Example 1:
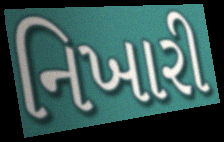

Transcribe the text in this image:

નિખારી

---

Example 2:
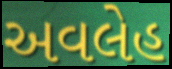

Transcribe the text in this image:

અવલેહ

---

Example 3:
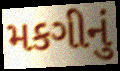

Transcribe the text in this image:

મકગીનું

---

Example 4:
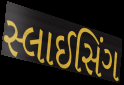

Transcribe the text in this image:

સ્લાઈસિંગ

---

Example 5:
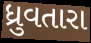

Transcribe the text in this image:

ધ્રુવતારા